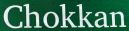
Chokkan